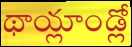
థాయ్లాండ్లో